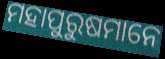
ମହାପୁରୁଷମାନେ